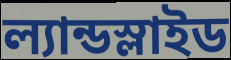
ল্যান্ডস্লাইড